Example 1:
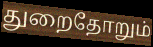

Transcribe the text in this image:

துறைதோறும்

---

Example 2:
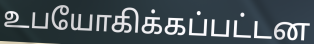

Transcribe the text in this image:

உபயோகிக்கப்பட்டன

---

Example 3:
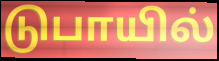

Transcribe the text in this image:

டுபாயில்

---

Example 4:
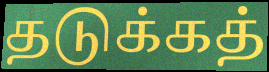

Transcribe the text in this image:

தடுக்கத்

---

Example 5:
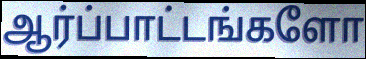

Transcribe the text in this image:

ஆர்ப்பாட்டங்களோ